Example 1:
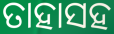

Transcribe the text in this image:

ତାହାସହ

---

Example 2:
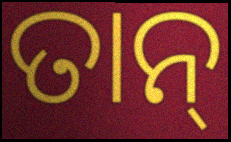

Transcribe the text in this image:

ତାନ୍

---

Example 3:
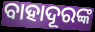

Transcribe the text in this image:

ବାହାଦୂରଙ୍କ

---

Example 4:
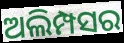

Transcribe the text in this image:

ଅଲିମ୍ପସର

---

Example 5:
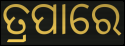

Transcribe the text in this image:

ତ୍ରପାରେ